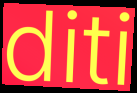
diti